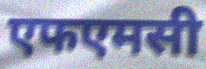
एफएमसी